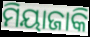
ମିୟାଜାକି